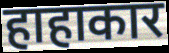
हाहाकार